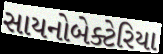
સાયનોબેક્ટેરિયા